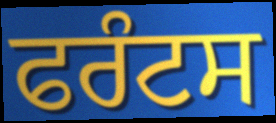
ਫਰੰਟਸ